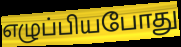
எழுப்பியபோது